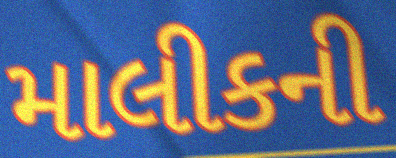
માલીકની